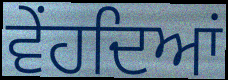
ਵੇਂਹਦਿਆਂ